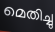
മെതിച്ചു